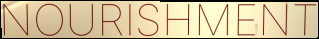
NOURISHMENT